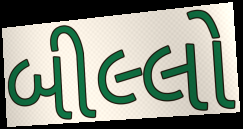
બીલ્લો